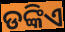
ଡଙ୍କିଏ